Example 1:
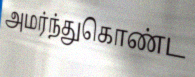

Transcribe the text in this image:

அமர்ந்துகொண்ட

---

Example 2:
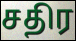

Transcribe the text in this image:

சதிர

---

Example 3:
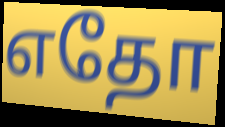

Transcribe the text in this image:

எதோ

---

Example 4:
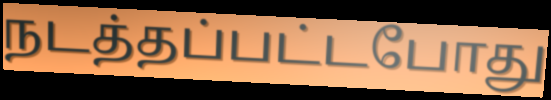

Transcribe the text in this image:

நடத்தப்பட்டபோது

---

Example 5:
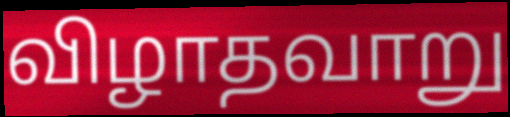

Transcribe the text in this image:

விழாதவாறு